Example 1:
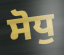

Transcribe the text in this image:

ਸੋਧੁ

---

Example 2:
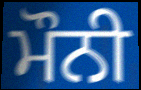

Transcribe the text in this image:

ਮੌਨੀ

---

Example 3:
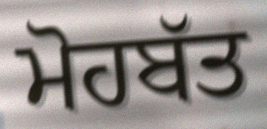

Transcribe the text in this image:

ਮੋਹਬੱਤ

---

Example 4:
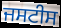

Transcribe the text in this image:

ਜਸਟੀਸ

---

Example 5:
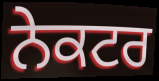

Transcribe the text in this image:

ਨੇਕਟਰ